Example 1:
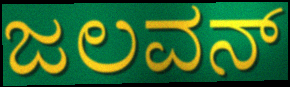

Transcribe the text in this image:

ಜಲವನ್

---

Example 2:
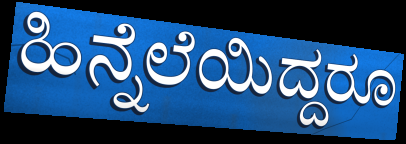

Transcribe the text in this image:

ಹಿನ್ನೆಲೆಯಿದ್ದರೂ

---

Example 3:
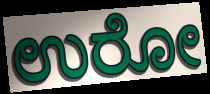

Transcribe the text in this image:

ಉರೋ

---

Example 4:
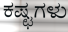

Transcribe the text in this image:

ಕಷ್ಟಗಳು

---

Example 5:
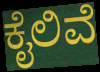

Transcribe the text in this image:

ಕೈಲಿವೆ